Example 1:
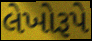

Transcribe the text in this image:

લેખોરૂપે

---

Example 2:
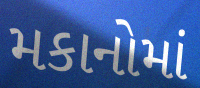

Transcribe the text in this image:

મકાનોમાં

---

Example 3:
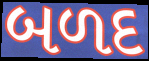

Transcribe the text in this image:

બળદ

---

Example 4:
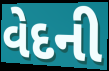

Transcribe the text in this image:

વેદની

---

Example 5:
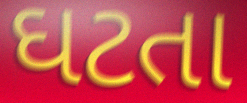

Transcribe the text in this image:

ઘટતા